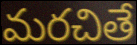
మరచితే